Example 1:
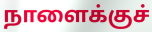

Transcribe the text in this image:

நாளைக்குச்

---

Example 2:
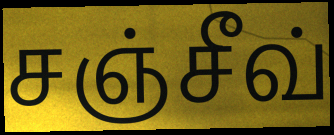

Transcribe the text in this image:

சஞ்சீவ்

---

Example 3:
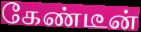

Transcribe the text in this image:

கேண்டீன்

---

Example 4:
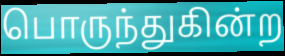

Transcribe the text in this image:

பொருந்துகின்ற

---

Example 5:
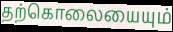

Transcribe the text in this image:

தற்கொலையையும்